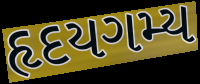
હૃદયગમ્ય